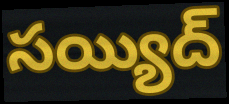
సయ్యిద్